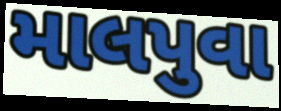
માલપુવા